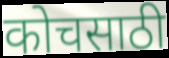
कोचसाठी